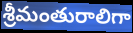
శ్రీమంతురాలిగా